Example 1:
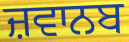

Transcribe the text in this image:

ਜ਼ਵਾਨਬ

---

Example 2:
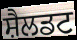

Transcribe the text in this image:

ਸ਼ੈਲਡਟ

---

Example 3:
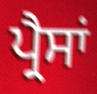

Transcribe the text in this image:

ਪ੍ਰੈਸਾਂ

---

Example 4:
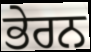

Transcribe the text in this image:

ਭੇਰਨ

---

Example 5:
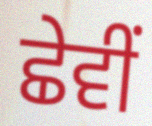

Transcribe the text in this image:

ਛੇਵੀਂ